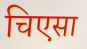
चिएसा